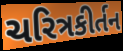
ચરિત્રકીર્તન